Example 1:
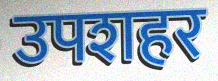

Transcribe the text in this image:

उपशहर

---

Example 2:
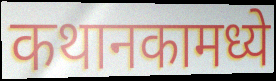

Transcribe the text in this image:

कथानकामध्ये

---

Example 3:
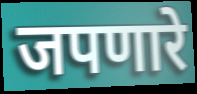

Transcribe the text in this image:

जपणारे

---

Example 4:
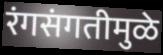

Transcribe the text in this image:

रंगसंगतीमुळे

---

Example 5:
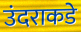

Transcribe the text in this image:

उंदराकडे